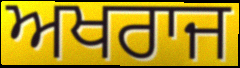
ਅਖਰਾਜ